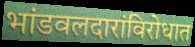
भांडवलदारांविरोधात